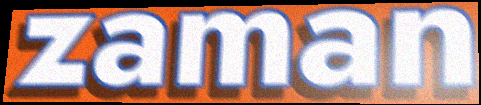
zaman